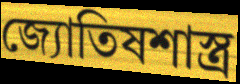
জ্যোতিষশাস্ত্র